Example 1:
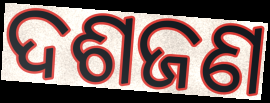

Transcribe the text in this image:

ଦଶଜଣ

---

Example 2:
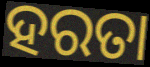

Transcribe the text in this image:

ହରତା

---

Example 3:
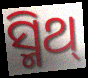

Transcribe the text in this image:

ସ୍ମିଥ୍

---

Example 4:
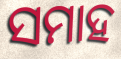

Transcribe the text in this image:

ସମାହ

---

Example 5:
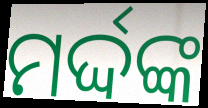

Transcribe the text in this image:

ମର୍ଦ୍ଦଙ୍କ